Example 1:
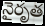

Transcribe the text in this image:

నైరృత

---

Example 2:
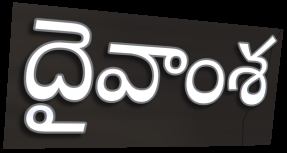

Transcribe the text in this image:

దైవాంశ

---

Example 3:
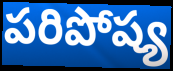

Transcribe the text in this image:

పరిపోష్య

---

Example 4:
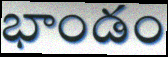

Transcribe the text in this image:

భాండం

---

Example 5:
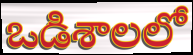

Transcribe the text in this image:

ఒడిశాలలో